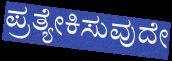
ಪ್ರತ್ಯೇಕಿಸುವುದೇ